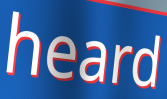
heard